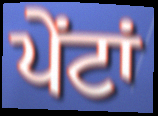
ਪੇਂਟਾਂ